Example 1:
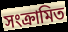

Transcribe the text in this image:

সংক্রামিত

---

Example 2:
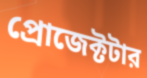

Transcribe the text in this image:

প্রোজেক্টটার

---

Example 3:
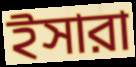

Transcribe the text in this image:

ইসারা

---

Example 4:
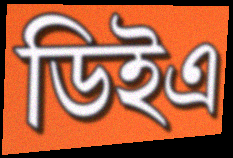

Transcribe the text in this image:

ডিইএ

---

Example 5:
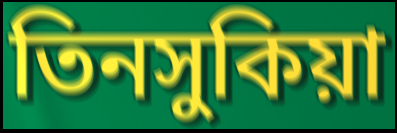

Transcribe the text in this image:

তিনসুকিয়া